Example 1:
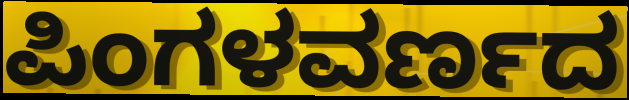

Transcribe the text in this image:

ಪಿಂಗಳವರ್ಣದ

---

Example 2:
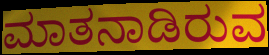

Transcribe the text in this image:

ಮಾತನಾಡಿರುವ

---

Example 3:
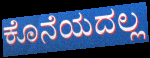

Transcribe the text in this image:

ಕೊನೆಯದಲ್ಲ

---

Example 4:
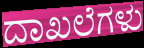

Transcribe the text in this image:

ದಾಖಲೆಗಳು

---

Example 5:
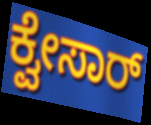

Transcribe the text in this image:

ಕ್ವೇಸಾರ್